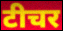
टीचर